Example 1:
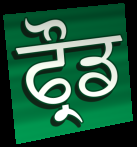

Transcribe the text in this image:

ਫ੍ਰੌਡ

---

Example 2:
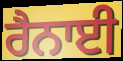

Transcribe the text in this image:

ਰੈਨਾਈ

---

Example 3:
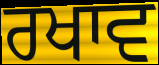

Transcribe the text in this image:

ਰਖਾਵ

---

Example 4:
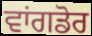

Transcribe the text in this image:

ਵਾਂਗਡੋਰ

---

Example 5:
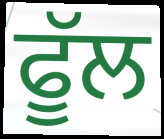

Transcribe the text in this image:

ਫੂੱਲ